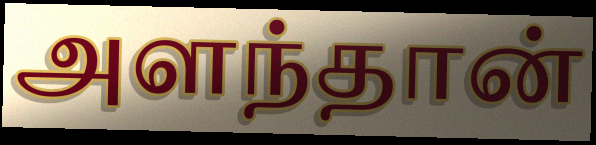
அளந்தான்